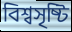
বিশ্বসৃষ্টি